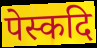
पेस्कदि